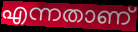
എന്നതാണ്